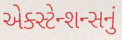
એક્સ્ટેન્શન્સનું